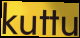
kuttu